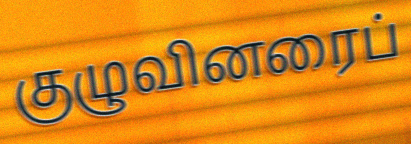
குழுவினரைப்